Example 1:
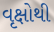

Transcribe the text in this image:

વૃક્ષોથી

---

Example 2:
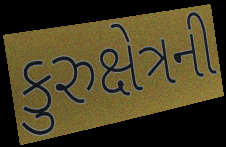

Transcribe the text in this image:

કુરુક્ષેત્રની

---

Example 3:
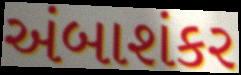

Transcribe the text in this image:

અંબાશંકર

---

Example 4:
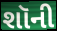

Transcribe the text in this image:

શૉની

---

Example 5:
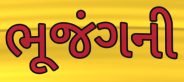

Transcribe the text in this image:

ભૂજંગની